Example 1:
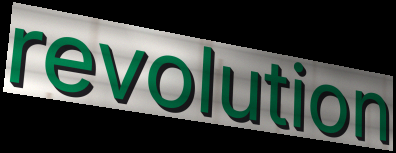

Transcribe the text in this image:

revolution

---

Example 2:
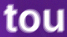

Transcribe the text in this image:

tou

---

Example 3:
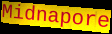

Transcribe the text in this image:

Midnapore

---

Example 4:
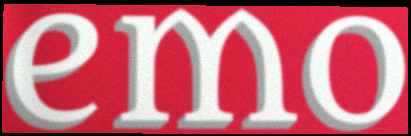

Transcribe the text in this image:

emo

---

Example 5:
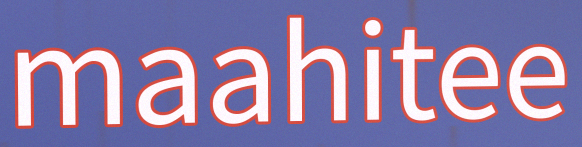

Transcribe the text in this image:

maahitee